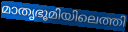
മാതൃഭൂമിയിലെത്തി